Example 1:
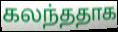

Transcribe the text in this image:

கலந்ததாக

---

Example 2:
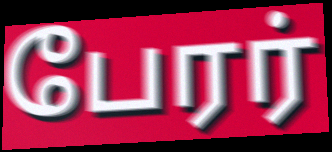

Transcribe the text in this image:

பேரர்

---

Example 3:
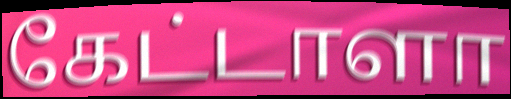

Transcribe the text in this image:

கேட்டாளா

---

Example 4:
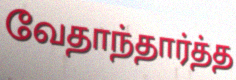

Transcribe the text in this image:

வேதாந்தார்த்த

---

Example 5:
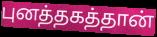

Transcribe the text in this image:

புனத்தகத்தான்